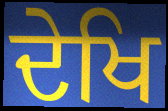
ਦੇਖਿ